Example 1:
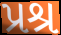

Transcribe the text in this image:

પ્રશ્ર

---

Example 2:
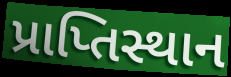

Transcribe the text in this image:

પ્રાપ્તિસ્થાન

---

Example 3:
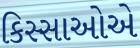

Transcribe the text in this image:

કિસ્સાઓએ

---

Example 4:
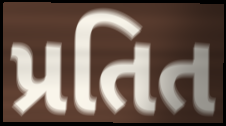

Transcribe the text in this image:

પ્રતિત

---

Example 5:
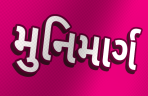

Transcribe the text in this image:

મુનિમાર્ગ